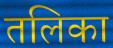
तलिका